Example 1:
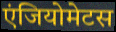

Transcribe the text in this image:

एंजियोमेटस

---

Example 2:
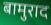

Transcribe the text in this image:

बामुराद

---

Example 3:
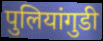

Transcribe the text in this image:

पुलियांगुडी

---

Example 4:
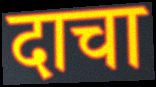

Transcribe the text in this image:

दाचा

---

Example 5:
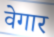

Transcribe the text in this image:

वेगार